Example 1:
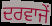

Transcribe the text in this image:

ਦਰਵਾਜੇਂ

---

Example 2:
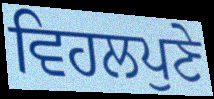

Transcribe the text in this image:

ਵਿਹਲਪੁਣੇ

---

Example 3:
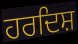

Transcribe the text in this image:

ਹਰਦਿਸ਼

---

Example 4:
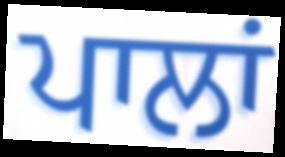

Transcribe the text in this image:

ਪਾਲਾਂ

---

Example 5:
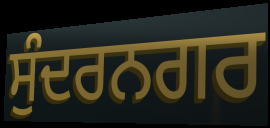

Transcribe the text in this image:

ਸੁੰਦਰਨਗਰ